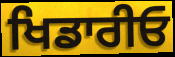
ਖਿਡਾਰੀਓ